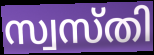
സ്വസ്തി